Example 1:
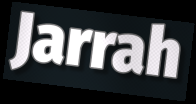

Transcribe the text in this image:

Jarrah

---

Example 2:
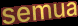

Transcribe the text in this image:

semua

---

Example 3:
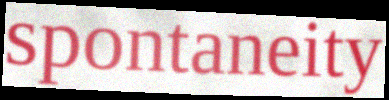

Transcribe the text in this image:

spontaneity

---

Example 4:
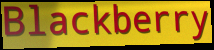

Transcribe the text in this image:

Blackberry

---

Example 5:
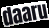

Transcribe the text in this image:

daaru